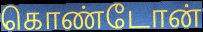
கொண்டோன்